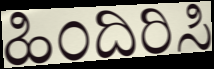
ಹಿಂದಿರಿಸಿ